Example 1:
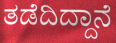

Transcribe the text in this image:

ತಡೆದಿದ್ದಾನೆ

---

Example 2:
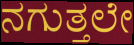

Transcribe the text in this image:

ನಗುತ್ತಲೇ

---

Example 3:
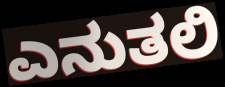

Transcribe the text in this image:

ಎನುತಲಿ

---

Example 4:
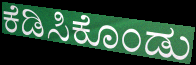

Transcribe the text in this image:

ಕೆಡಿಸಿಕೊಂಡು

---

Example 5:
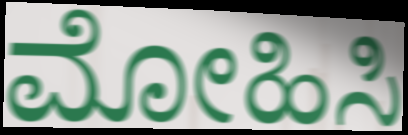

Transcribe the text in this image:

ಮೋಹಿಸಿ